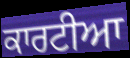
ਕਾਰਟੀਆ